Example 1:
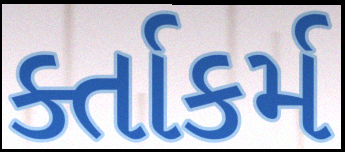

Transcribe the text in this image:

ર્ક્તાકર્મ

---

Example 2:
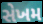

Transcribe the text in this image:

સેખમ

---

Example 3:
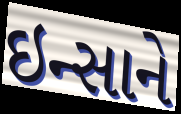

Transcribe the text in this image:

ઇન્સાને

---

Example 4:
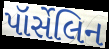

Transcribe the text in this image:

પૉર્સેલિન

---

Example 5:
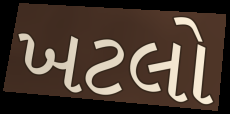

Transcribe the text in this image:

ખટલો